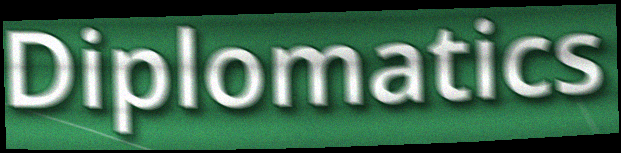
Diplomatics